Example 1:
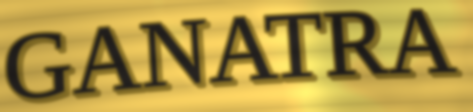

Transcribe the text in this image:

GANATRA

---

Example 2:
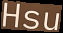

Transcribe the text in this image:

Hsu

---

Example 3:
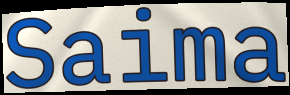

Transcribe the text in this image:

Saima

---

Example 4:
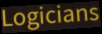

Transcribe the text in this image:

Logicians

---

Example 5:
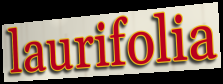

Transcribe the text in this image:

laurifolia